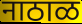
नाठाळ